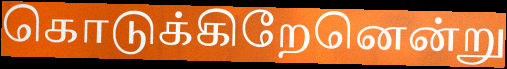
கொடுக்கிறேனென்று